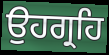
ਉਹਗ੍ਰਹਿ